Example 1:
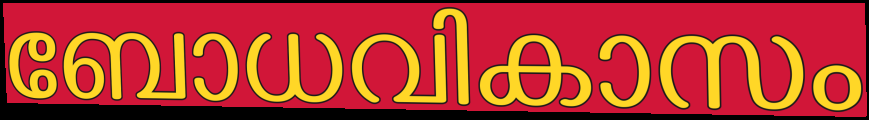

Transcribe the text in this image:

ബോധവികാസം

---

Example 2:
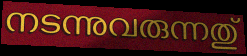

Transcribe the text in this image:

നടന്നുവരുന്നതു്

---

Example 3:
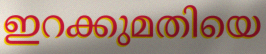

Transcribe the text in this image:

ഇറക്കുമതിയെ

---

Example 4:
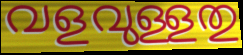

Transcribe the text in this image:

വളവുള്ളതു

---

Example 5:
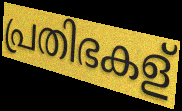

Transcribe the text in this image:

പ്രതിഭകള്